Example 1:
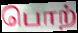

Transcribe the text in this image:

பொற்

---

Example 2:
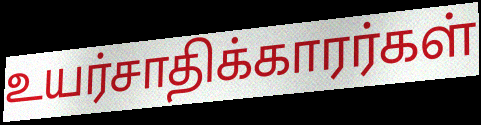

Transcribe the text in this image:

உயர்சாதிக்காரர்கள்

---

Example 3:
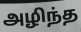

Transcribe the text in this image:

அழிந்த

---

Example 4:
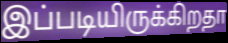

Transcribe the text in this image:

இப்படியிருக்கிறதா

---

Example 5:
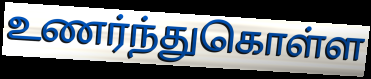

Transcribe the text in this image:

உணர்ந்துகொள்ள